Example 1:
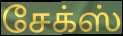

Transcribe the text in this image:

சேக்ஸ்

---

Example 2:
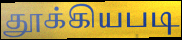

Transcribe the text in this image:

தூக்கியபடி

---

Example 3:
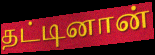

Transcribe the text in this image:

தட்டினான்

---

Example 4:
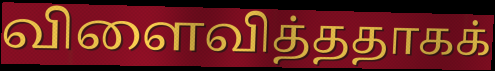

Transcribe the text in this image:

விளைவித்ததாகக்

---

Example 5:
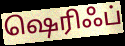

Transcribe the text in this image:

ஷெரிஃப்